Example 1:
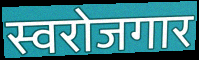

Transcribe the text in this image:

स्वरोजगार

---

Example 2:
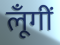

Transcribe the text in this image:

लूँगीं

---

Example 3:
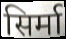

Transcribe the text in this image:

सिर्मा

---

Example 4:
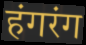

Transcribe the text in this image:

हंगरंग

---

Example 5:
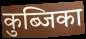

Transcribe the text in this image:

कुब्जिका